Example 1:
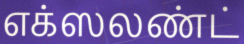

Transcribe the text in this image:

எக்ஸலண்ட்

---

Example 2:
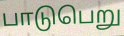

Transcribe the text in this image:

பாடுபெறு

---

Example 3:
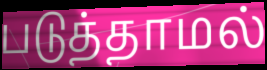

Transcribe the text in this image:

படுத்தாமல்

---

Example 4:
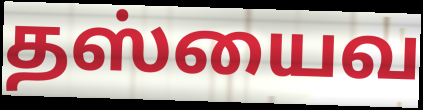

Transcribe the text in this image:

தஸ்யைவ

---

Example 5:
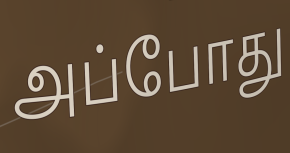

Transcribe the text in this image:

அப்போது